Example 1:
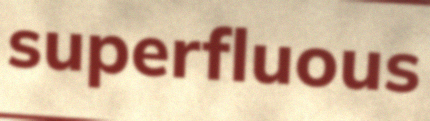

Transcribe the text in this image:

superfluous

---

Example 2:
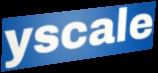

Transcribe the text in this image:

yscale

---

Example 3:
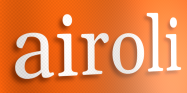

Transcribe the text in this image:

airoli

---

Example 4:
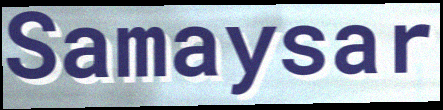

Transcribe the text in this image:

Samaysar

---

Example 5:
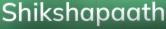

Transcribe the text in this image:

Shikshapaath